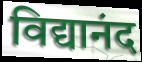
विद्यानंद